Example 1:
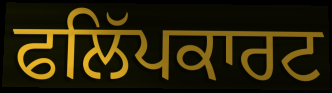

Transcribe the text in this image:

ਫਲਿੱਪਕਾਰਟ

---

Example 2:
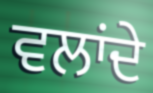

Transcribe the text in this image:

ਵਲਾਂਦੇ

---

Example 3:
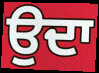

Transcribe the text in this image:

ਉਦਾ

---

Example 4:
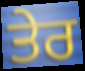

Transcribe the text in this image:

ਤੇਰ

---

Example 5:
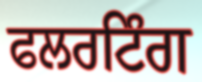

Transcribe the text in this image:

ਫਲਰਟਿੰਗ